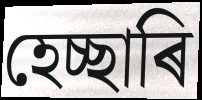
হেচ্ছাৰি